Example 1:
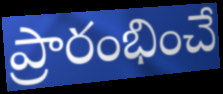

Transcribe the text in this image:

ప్రారంభించే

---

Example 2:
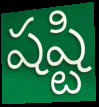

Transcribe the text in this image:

షష్టి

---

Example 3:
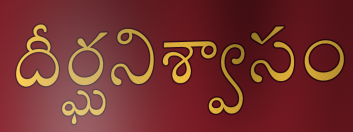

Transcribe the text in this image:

దీర్ఘనిశ్వాసం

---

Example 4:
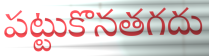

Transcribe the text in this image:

పట్టుకొనతగదు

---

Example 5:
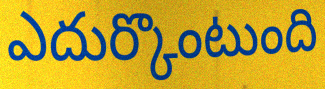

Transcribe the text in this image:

ఎదుర్కొంటుంది